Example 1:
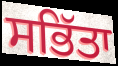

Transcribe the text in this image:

ਸਭਿੱਤਾ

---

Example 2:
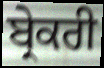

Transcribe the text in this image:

ਬ੍ਰੇਕਰੀ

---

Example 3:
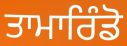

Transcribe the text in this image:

ਤਾਮਾਰਿੰਡੋ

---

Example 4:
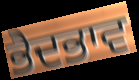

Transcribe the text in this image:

ਭੈਦਭਾਵ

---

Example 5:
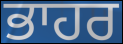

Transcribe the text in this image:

ਭਾਹਰ